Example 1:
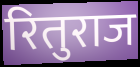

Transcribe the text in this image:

रितुराज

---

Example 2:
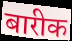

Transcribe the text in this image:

बारीक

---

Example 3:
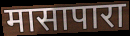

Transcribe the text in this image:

मासापारा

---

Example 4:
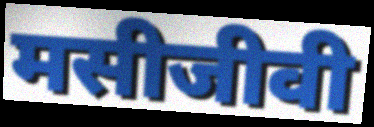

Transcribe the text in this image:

मसीजीवी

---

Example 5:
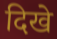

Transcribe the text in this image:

दिखे